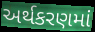
અર્થકરણમાં